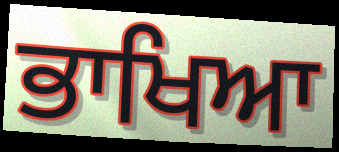
ਭਾਖਿਆ